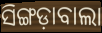
ସିଙ୍ଗଡ଼ାବାଲା